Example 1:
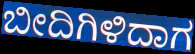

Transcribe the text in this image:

ಬೀದಿಗಿಳಿದಾಗ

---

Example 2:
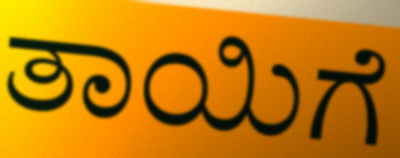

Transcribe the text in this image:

ತಾಯಿಗೆ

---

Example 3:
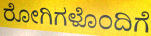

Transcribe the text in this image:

ರೋಗಿಗಳೊಂದಿಗೆ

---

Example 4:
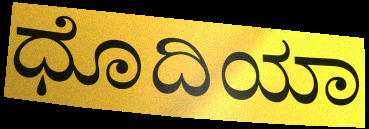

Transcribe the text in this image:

ಧೊದಿಯಾ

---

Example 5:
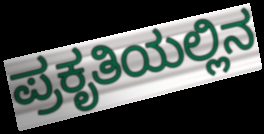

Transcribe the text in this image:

ಪ್ರಕೃತಿಯಲ್ಲಿನ